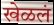
खेळलं